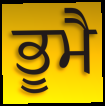
ਭੂਮੈ